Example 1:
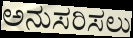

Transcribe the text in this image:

ಅನುಸರಿಸಲು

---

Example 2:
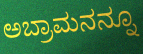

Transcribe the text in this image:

ಅಬ್ರಾಮನನ್ನೂ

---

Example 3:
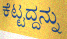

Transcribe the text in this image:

ಕೆಟ್ಟದ್ದನ್ನು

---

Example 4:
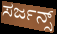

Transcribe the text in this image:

ಸರ್ಜನ್ಸ್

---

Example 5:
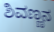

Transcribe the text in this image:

ಶಿವಣ್ಣನ